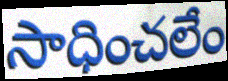
సాధించలేం